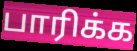
பாரிக்க